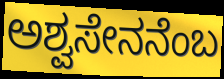
ಅಶ್ವಸೇನನೆಂಬ